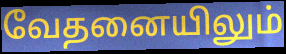
வேதனையிலும்